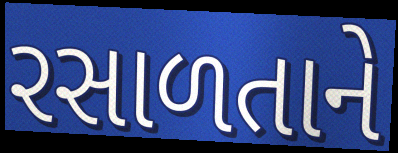
રસાળતાને